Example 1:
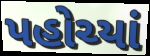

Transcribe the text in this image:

પહોચ્યાં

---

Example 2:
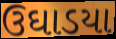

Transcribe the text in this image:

ઉઘાડયા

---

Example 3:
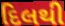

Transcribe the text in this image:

દિલથી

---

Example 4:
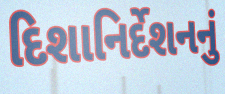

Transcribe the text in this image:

દિશાનિર્દેશનનું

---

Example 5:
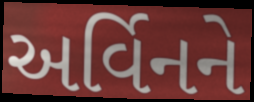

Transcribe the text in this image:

અર્વિનને